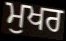
ਮੁਖਰ